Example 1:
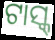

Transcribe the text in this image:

ଟାସ୍କ୍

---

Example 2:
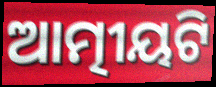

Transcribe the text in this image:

ଆତ୍ମୀୟଟି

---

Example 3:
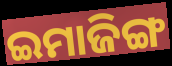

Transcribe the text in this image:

ଇମାଜିଙ୍ଗ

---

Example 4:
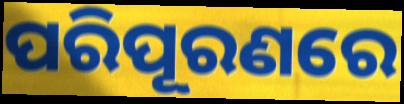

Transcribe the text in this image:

ପରିପୂରଣରେ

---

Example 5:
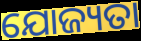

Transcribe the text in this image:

ଯୋଜ୍ୟତା